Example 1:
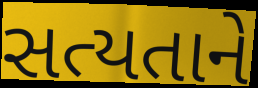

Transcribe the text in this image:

સત્યતાને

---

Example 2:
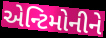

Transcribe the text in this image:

એન્ટિમોનીને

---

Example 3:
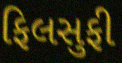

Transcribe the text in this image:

ફિલસુફી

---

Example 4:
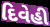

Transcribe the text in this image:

દિવેહી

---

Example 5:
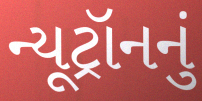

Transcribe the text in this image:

ન્યૂટ્રૉનનું